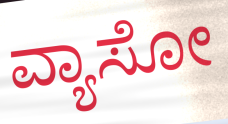
ವ್ಯಾಸೋ